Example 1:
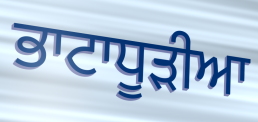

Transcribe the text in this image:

ਭਾਟਾਧੂੜੀਆ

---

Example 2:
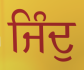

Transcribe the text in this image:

ਜਿੰਦੁ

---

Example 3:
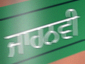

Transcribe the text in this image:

ਜਾਹਨਵੀ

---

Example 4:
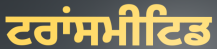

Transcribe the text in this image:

ਟਰਾਂਸਮੀਟਿਡ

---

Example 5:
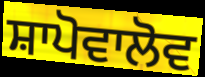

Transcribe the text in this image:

ਸ਼ਾਪੋਵਾਲੋਵ